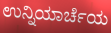
ಉನ್ನಿಯಾರ್ಚೆಯ